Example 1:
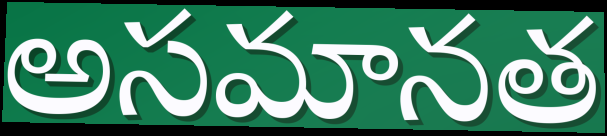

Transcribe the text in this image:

అసమానత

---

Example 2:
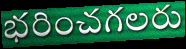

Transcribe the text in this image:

భరించగలరు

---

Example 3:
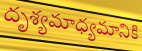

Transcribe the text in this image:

దృశ్యమాధ్యమానికి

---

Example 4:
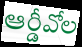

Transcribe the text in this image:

ఆర్డీవోల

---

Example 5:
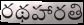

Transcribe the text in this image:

రథహారతి